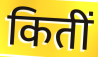
कितीं